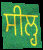
ਸੀਲ੍ਹ